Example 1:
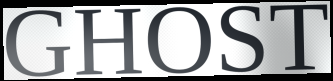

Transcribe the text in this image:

GHOST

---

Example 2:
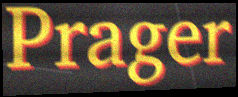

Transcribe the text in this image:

Prager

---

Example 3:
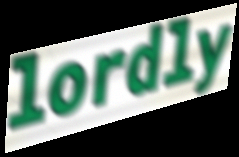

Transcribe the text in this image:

lordly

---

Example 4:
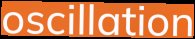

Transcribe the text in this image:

oscillation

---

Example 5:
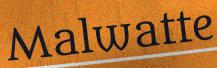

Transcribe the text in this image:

Malwatte